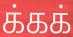
க்கக்